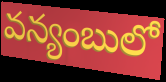
వన్యంబులో